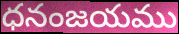
ధనంజయము